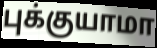
புக்குயாமா